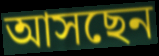
আসছেন